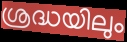
ശ്രദ്ധയിലും